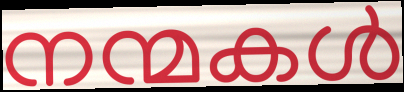
നന്മകൾ